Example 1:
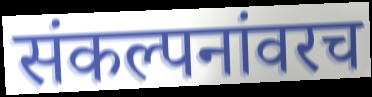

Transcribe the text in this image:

संकल्पनांवरच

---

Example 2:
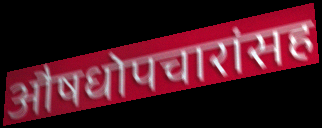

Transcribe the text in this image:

औषधोपचारांसह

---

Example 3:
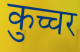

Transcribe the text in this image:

कुच्चर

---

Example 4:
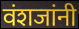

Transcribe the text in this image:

वंशजांनी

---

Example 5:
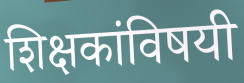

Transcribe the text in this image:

शिक्षकांविषयी